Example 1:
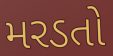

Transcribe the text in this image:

મરડતો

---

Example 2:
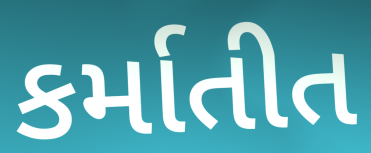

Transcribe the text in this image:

કર્માતીત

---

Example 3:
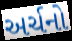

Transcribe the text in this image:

અર્ચનો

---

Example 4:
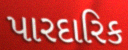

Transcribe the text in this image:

પારદારિક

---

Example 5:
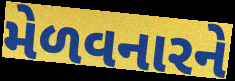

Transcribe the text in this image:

મેળવનારને